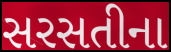
સરસતીના